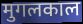
मुगलकाल